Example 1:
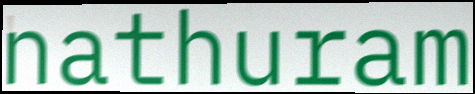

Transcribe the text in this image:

nathuram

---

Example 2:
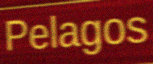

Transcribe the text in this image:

Pelagos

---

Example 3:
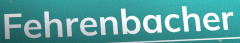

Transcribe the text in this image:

Fehrenbacher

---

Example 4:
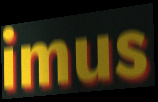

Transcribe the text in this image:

imus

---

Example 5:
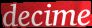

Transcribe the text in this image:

decime